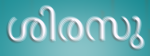
ശിരസു